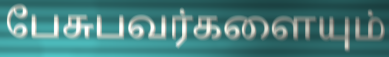
பேசுபவர்களையும்